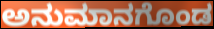
ಅನುಮಾನಗೊಂಡ